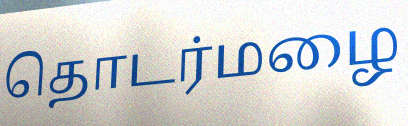
தொடர்மழை